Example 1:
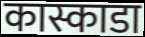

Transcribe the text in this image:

कास्काडा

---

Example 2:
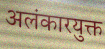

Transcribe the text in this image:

अलंकारयुक्त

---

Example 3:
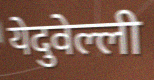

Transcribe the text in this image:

येदुवेल्ली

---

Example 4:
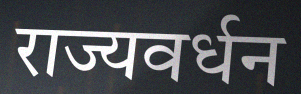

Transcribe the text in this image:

राज्‍यवर्धन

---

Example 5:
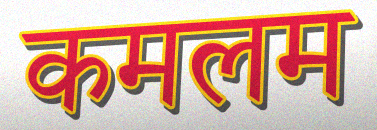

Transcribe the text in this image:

कमलम